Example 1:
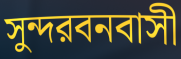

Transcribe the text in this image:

সুন্দরবনবাসী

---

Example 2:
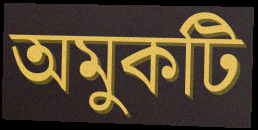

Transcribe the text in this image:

অমুকটি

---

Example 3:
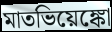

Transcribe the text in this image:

মাতভিয়েঙ্কো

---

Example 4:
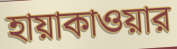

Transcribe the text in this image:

হায়াকাওয়ার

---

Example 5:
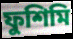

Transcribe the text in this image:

ফুশিমি